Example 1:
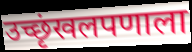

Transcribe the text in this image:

उच्छृंखलपणाला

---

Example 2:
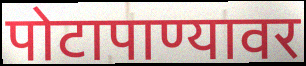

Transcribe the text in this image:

पोटापाण्यावर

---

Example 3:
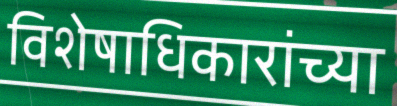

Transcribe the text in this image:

विशेषाधिकारांच्या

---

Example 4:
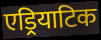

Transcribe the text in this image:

एड्रियाटिक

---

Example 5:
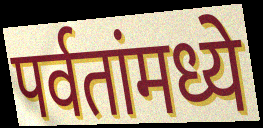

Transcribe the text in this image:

पर्वतांमध्ये